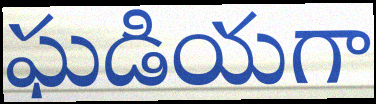
ఘడియగా